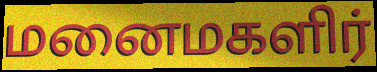
மனைமகளிர்